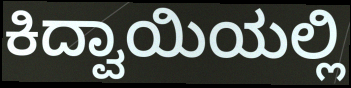
ಕಿದ್ವಾಯಿಯಲ್ಲಿ